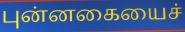
புன்னகையைச்